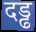
दड्ढ